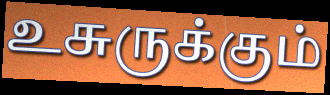
உசுருக்கும்